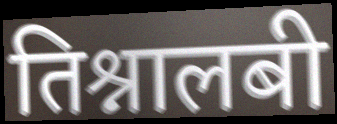
तिश्नालबी